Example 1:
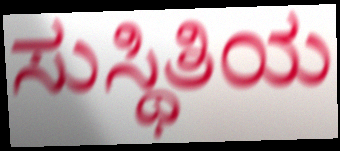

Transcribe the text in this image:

ಸುಸ್ಥಿತಿಯ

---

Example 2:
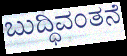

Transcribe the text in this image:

ಬುದ್ಧಿವಂತನೆ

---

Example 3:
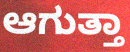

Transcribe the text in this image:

ಆಗುತ್ತಾ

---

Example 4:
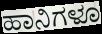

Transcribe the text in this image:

ಹಾನಿಗಳೂ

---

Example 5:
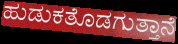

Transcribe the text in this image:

ಹುಡುಕತೊಡಗುತ್ತಾನೆ